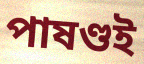
পাষণ্ডই